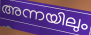
അന്നയിലും